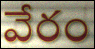
వేరం